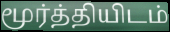
மூர்த்தியிடம்